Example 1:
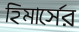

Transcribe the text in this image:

হিমার্সের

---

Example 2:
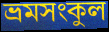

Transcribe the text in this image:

ভ্রমসংকুল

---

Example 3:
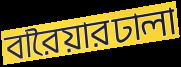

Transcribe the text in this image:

বারৈয়ারঢালা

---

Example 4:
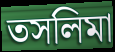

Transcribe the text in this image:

তসলিমা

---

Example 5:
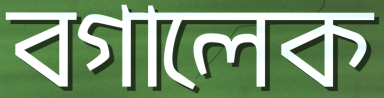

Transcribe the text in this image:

বগালেক